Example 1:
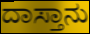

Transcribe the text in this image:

ದಾಸ್ತಾನು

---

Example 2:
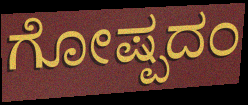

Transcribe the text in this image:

ಗೋಷ್ಪದಂ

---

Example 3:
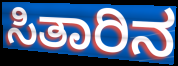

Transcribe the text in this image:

ಸಿತಾರಿನ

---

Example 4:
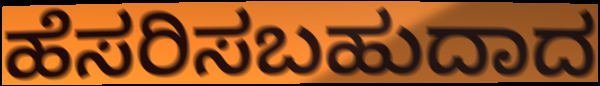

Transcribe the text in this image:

ಹೆಸರಿಸಬಹುದಾದ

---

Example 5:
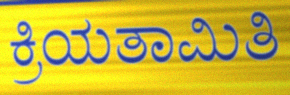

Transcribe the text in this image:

ಕ್ರಿಯತಾಮಿತಿ